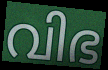
വിഭ